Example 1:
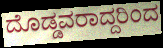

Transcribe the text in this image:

ದೊಡ್ಡವರಾದ್ದರಿಂದ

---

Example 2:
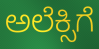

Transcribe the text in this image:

ಅಲೆಕ್ಸಿಗೆ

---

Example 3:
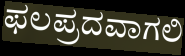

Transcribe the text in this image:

ಫಲಪ್ರದವಾಗಲಿ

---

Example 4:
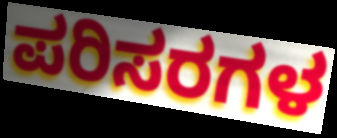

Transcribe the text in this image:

ಪರಿಸರಗಳ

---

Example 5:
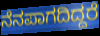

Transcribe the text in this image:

ನೆನಪಾಗದಿದ್ದರೆ